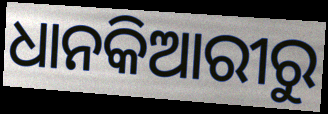
ଧାନକିଆରୀରୁ